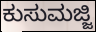
ಕುಸುಮಜ್ಜಿ